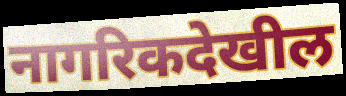
नागरिकदेखील